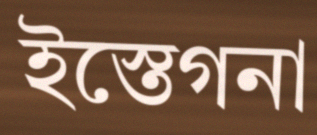
ইস্তেগনা